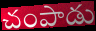
చంపాడు